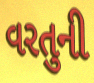
વરતુની